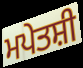
ਮਪੇਤਸ਼ੀ